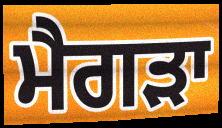
ਮੈਗੜਾ